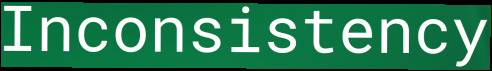
Inconsistency